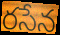
రసేన